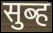
सुब्ह